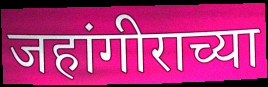
जहांगीराच्या